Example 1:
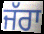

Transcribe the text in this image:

ਜੱਰਾ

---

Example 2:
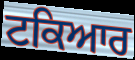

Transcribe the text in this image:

ਟਕਿਆਰ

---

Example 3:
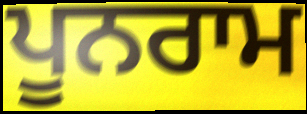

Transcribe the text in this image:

ਪੂਨਰਾਮ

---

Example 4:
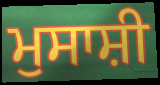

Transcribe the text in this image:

ਮੁਸਾਸ਼ੀ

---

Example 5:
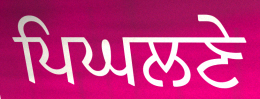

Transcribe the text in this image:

ਪਿਘਲਣੇ